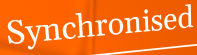
Synchronised